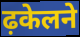
ढ़केलने